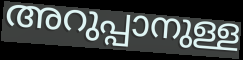
അറുപ്പാനുള്ള